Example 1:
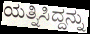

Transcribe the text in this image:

ಯತ್ನಿಸಿದ್ದನ್ನು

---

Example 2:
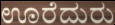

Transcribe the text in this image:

ಊರೆದುರು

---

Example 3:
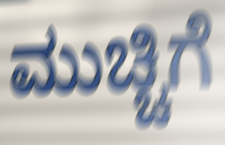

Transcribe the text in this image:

ಮುಚ್ಚಿಗೆ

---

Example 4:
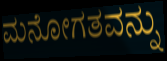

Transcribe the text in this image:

ಮನೋಗತವನ್ನು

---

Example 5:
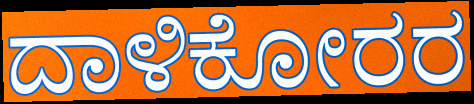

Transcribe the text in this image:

ದಾಳಿಕೋರರ